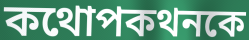
কথোপকথনকে